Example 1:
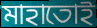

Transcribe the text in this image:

মাহাতোই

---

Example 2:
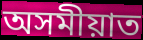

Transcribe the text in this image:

অসমীয়াত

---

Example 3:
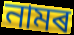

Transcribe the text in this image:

নামৰ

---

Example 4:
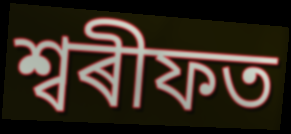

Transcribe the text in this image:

শ্বৰীফত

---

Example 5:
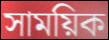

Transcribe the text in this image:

সাময়িক